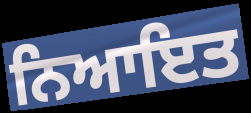
ਨਿਆਇਤ